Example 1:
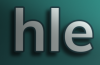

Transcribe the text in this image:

hle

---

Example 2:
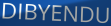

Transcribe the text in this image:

DIBYENDU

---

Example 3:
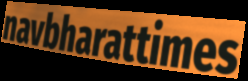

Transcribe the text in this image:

navbharattimes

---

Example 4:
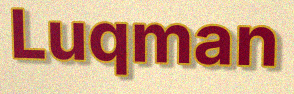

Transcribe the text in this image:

Luqman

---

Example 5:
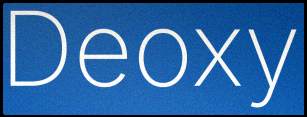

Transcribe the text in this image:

Deoxy